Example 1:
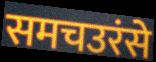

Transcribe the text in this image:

समचउरंसे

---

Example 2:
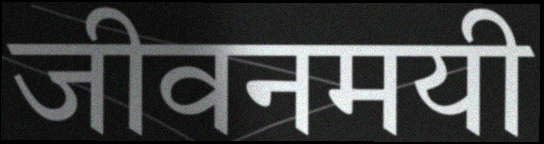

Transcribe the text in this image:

जीवनमयी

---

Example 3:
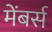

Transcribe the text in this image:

मेंबर्स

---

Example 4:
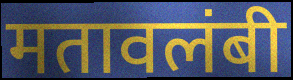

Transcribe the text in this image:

मतावलंबी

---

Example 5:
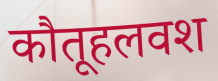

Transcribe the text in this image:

कौतूहलवश